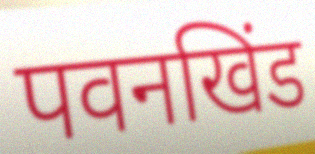
पवनखिंड